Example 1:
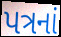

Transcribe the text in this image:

પત્રનાં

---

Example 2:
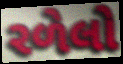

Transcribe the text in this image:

રળેલો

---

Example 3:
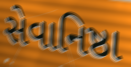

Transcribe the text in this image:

સેવાનિષ્ઠા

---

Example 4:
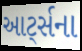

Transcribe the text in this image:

આર્ટ્સના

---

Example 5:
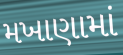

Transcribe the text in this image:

મખાણામાં